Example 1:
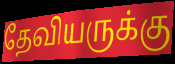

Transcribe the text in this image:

தேவியருக்கு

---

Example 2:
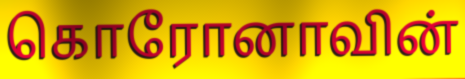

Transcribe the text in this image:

கொரோனாவின்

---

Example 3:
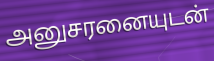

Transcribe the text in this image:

அனுசரனையுடன்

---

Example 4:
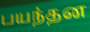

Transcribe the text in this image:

பயந்தன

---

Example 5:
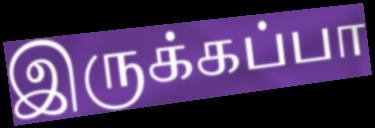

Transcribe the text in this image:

இருக்கப்பா